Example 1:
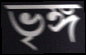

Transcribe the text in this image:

ভৃঙ্গ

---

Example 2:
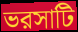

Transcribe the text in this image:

ভরসাটি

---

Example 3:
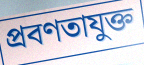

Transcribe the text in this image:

প্রবণতাযুক্ত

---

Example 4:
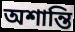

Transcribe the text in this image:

অশান্তি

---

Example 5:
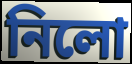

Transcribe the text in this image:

নিলো